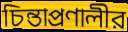
চিন্তাপ্রণালীর